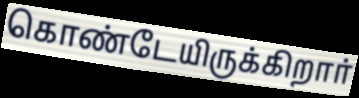
கொண்டேயிருக்கிறார்